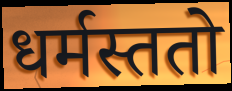
धर्मस्ततो